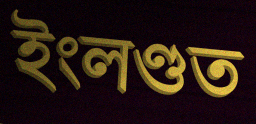
ইংলণ্ডত